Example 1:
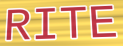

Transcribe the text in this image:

RITE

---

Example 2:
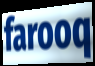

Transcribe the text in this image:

farooq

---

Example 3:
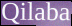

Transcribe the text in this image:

Qilaba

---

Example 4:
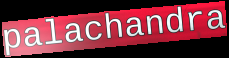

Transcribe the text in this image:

palachandra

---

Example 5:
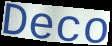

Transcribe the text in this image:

Deco